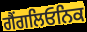
ਗੈਂਗਲਿਓਨਿਕ